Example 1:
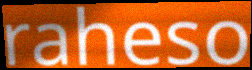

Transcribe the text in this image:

raheso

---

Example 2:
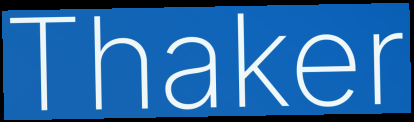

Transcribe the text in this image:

Thaker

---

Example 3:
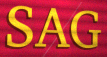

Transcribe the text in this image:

SAG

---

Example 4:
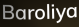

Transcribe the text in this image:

Baroliya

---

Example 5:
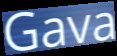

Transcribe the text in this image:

Gava